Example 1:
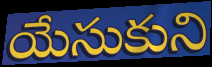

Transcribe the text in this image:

యేసుకుని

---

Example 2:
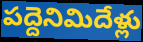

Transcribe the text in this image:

పద్దెనిమిదేళ్లు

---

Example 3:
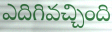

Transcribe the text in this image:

ఎదిగివచ్చింది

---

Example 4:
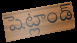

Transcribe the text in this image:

షెట్లాండ్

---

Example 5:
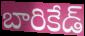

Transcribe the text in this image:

బారికేడ్